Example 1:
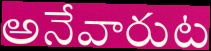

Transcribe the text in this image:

అనేవారుట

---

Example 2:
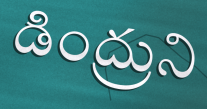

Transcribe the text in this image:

డింద్రుని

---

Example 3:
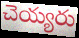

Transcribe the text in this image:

చెయ్యరు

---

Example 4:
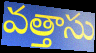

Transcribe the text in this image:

వత్తాసు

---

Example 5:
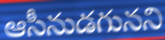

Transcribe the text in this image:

ఆసీనుడగునని